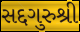
સદ્દગુરુશ્રી